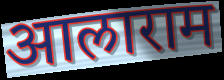
आलाराम